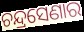
ଚନ୍ଦ୍ରସେଣାର